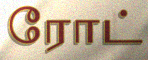
ரோட்